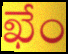
ఖేం